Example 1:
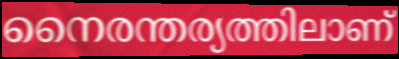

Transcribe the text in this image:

നൈരന്തര്യത്തിലാണ്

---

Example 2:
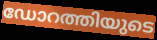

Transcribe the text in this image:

ഡോറത്തിയുടെ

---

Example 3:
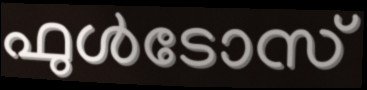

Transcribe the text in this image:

ഫുൾടോസ്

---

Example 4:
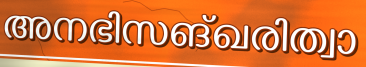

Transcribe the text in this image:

അനഭിസങ്ഖരിത്വാ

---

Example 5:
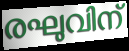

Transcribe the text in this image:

രഘുവിന്